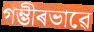
গম্ভীৰভাৱে